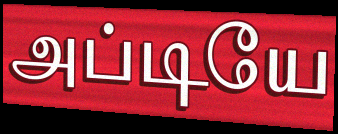
அப்டியே